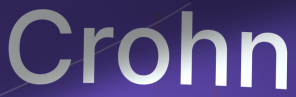
Crohn